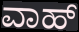
ವಾಹ್